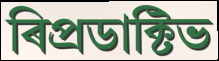
ৰিপ্ৰডাক্টিভ